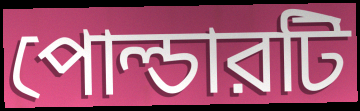
পোল্ডারটি